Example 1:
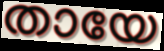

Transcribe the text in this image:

തായേ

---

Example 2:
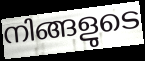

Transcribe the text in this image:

നിങ്ങളുടെ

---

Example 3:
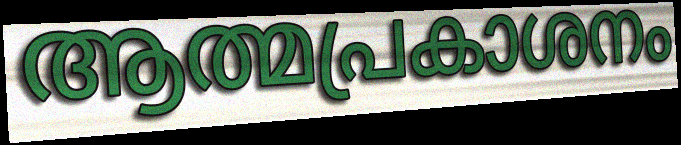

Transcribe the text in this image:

ആത്മപ്രകാശനം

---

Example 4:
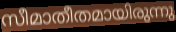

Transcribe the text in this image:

സീമാതീതമായിരുന്നു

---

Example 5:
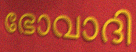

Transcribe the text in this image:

ഭോവാദി